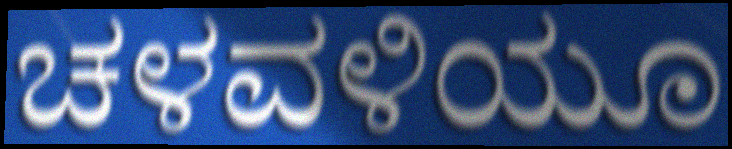
ಚಳವಳಿಯೂ